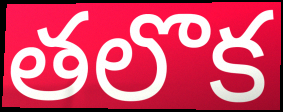
తలొక